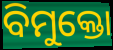
ବିମୁକ୍ତୋ